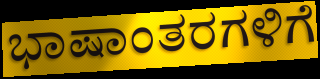
ಭಾಷಾಂತರಗಳಿಗೆ